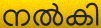
നൽകി